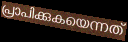
പ്രാപിക്കുകയെന്നത്